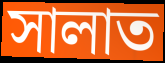
সালাত